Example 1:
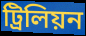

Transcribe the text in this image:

ট্রিলিয়ন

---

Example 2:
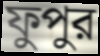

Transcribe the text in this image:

ফুপুর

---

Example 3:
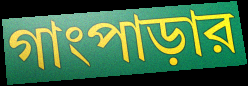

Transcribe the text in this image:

গাংপাড়ার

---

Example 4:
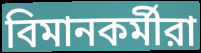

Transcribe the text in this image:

বিমানকর্মীরা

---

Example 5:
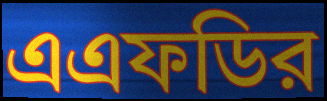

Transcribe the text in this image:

এএফডির